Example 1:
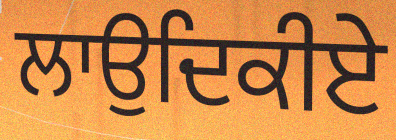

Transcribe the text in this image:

ਲਾਉਦਿਕੀਏ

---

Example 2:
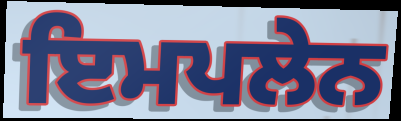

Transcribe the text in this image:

ਇਮਪਲੇਨ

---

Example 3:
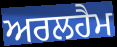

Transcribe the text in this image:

ਅਰਲਹੈਮ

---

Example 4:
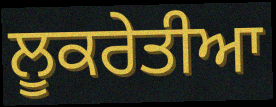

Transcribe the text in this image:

ਲੂਕਰੇਤੀਆ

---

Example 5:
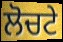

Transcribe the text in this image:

ਲੋਚਟੇ